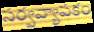
సర్వవ్యాపకం